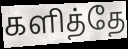
களித்தே